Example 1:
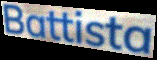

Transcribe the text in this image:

Battista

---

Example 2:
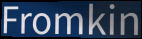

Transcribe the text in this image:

Fromkin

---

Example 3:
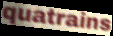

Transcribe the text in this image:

quatrains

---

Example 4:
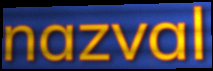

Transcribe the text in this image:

nazval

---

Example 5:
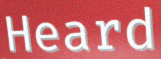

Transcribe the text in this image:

Heard